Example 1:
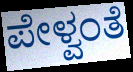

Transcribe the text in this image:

ಪೇಳ್ವಂತೆ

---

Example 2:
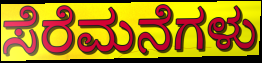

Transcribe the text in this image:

ಸೆರೆಮನೆಗಳು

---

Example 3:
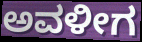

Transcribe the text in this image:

ಅವಳೀಗ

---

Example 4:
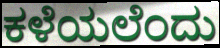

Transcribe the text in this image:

ಕಳೆಯಲೆಂದು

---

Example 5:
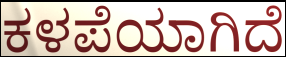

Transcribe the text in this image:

ಕಳಪೆಯಾಗಿದೆ